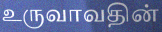
உருவாவதின்